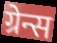
ग्रेन्स